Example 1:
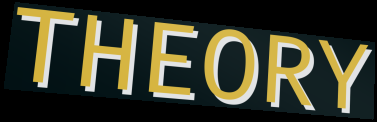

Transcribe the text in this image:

THEORY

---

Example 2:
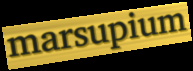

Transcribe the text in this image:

marsupium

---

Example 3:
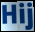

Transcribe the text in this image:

Hij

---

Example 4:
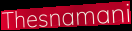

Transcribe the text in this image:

Thesnamani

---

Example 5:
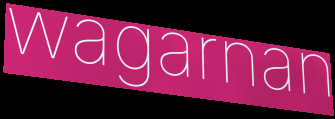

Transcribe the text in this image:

wagarnan